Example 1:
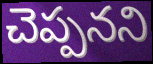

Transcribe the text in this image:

చెప్పనని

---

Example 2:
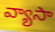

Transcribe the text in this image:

వ్యాసా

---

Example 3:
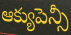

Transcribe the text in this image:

ఆక్యుపెన్సీ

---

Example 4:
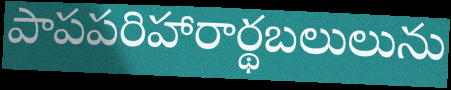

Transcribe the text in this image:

పాపపరిహారార్థబలులును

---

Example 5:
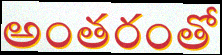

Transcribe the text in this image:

అంతరంతో